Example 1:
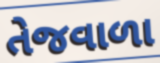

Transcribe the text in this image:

તેજવાળા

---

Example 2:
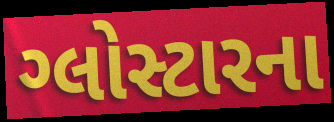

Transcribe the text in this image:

ગ્લોસ્ટારના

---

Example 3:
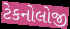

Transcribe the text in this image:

ટેકનોલોજી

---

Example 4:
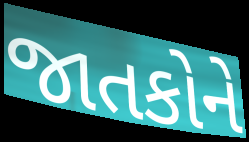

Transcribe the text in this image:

જાતકોને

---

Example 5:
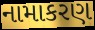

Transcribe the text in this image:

નામાકરણ